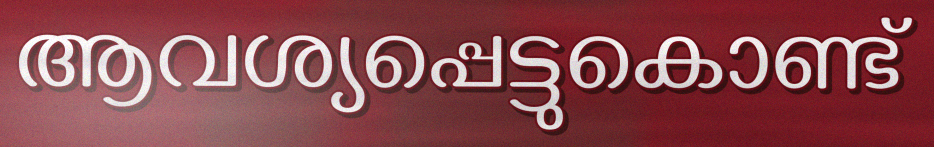
ആവശ്യപ്പെട്ടുകൊണ്ട്